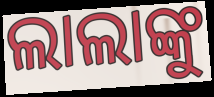
ଲାଲାଙ୍କୁ